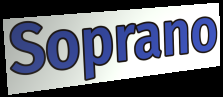
Soprano